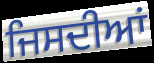
ਜਿਸਦੀਆਂ